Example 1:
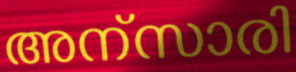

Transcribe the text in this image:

അന്സാരി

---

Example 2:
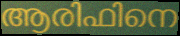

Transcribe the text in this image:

ആരിഫിനെ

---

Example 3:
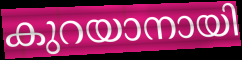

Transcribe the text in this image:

കുറയാനായി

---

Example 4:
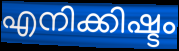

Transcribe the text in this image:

എനിക്കിഷ്ടം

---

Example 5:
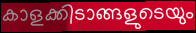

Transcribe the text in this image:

കാളക്കിടാങ്ങളുടെയും